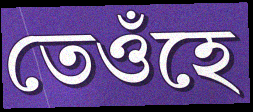
তেওঁহে